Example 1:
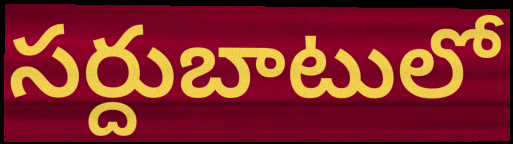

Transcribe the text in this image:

సర్దుబాటులో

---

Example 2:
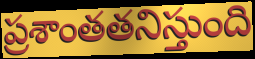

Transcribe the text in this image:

ప్రశాంతతనిస్తుంది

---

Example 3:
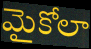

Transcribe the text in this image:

మైకోలా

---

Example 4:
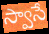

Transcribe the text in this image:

స్వాసే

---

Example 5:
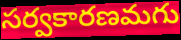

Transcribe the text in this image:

సర్వకారణమగు